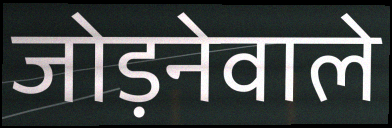
जोड़नेवाले